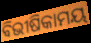
ବିଭୀଷିକାମୟ